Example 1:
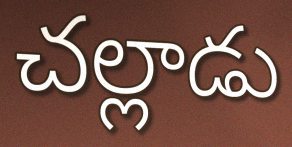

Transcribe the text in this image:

చల్లాడు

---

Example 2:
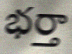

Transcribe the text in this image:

భర్తా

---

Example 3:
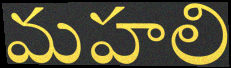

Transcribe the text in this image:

మహలి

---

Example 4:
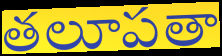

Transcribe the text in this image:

తలూపతా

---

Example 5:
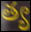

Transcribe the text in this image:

త్య